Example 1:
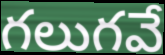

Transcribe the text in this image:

గలుగవే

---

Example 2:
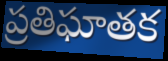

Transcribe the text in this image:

ప్రతిఘాతక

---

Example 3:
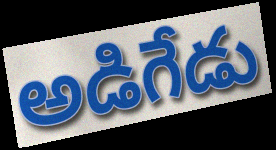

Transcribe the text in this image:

అడిగేడు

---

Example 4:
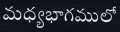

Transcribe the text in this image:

మధ్యభాగములో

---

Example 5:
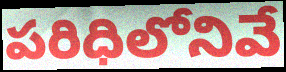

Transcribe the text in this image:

పరిధిలోనివే